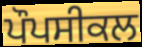
ਪੌਪਸੀਕਲ